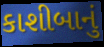
કાશીબાનું